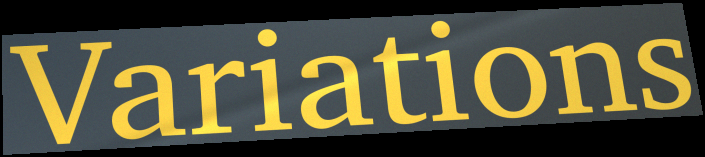
Variations